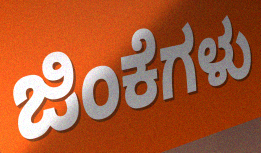
ಜಿಂಕೆಗಳು